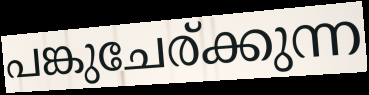
പങ്കുചേര്ക്കുന്ന